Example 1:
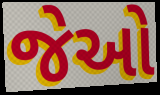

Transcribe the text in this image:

જેઓ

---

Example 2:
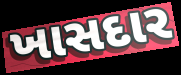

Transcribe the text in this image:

ખાસદાર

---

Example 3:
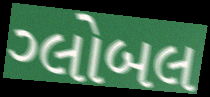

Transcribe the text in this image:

ગ્લોબલ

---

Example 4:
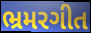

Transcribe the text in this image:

ભ્રમરગીત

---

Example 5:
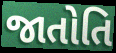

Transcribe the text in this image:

જાતોતિ